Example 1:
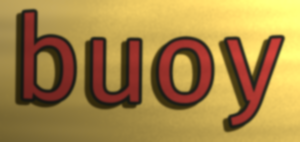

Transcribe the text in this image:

buoy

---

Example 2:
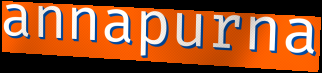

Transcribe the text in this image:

annapurna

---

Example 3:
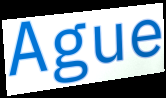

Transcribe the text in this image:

Ague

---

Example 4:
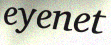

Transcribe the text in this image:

eyenet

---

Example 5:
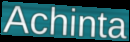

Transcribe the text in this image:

Achinta